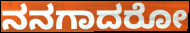
ನನಗಾದರೋ